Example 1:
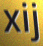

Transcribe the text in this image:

xij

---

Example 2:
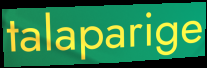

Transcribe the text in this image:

talaparige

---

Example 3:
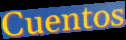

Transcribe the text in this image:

Cuentos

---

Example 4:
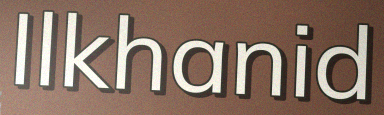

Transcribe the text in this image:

Ilkhanid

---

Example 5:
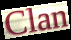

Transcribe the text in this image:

Clan